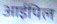
आईपिल